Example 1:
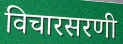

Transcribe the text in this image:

विचारसरणी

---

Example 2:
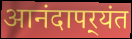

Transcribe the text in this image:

आनंदापर्यंत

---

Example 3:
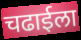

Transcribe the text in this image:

चढाईला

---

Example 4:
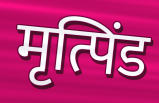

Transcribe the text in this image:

मृत्पिंड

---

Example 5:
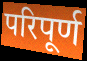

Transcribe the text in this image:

परिपूर्ण